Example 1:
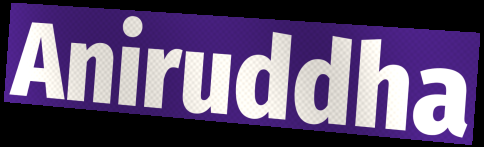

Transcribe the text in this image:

Aniruddha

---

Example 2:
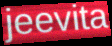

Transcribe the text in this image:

jeevita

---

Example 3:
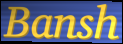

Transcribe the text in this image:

Bansh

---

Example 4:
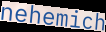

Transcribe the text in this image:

nehemich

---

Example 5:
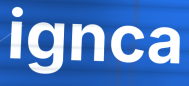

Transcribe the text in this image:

ignca